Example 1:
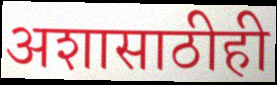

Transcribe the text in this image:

अशासाठीही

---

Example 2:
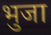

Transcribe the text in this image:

भुजा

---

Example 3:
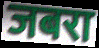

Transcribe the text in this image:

जबरा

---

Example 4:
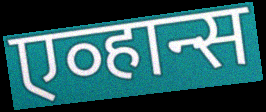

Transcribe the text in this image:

एव्हान्स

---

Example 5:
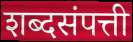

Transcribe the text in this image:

शब्दसंपत्ती